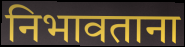
निभावताना